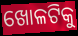
ଖୋଳଟିକୁ